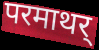
परमाथर्